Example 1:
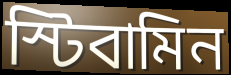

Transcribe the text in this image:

স্টিবামিন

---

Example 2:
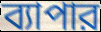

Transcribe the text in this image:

ব্যাপার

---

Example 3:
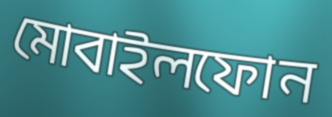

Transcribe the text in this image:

মোবাইলফোন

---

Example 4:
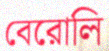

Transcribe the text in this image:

বেরোলি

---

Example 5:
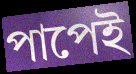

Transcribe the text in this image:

পাপেই